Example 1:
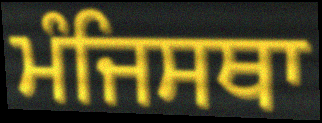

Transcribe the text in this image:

ਮੰਜਿਸਥਾ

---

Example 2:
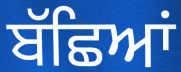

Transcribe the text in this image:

ਬੱਛਿਆਂ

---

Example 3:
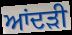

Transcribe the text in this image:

ਆਂਦੜੀ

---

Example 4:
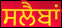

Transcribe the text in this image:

ਸਲੈਬਾਂ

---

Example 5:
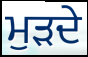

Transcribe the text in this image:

ਮੁਡ਼ਦੇ